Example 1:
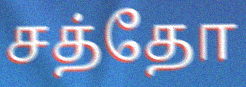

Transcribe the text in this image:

சத்தோ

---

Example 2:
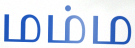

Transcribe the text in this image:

மம்ம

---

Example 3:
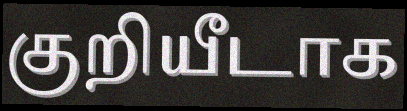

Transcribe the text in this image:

குறியீடாக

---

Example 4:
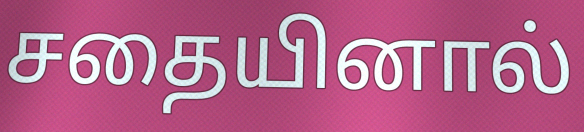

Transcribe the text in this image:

சதையினால்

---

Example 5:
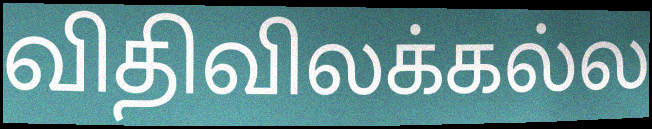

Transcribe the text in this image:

விதிவிலக்கல்ல